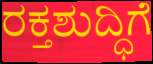
ರಕ್ತಶುದ್ಧಿಗೆ